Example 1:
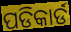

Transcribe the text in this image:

ପଡିକାର୍ଡ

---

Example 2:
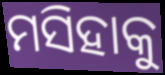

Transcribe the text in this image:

ମସିହାକୁ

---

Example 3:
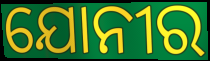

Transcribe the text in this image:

ଯୋନୀର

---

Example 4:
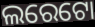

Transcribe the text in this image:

ଲରେଟୋ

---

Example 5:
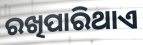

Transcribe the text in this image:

ରଖିପାରିଥାଏ